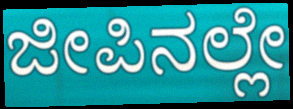
ಜೀಪಿನಲ್ಲೇ